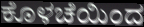
ಕೊಳಚೆಯಿಂದ